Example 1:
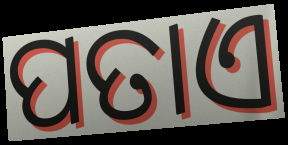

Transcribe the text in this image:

ପତାଏ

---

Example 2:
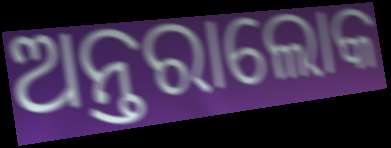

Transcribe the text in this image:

ଅନ୍ତରାଲୋକ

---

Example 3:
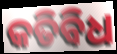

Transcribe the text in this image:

କତିବିଧ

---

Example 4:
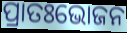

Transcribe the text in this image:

ପ୍ରାତଃଭୋଜନ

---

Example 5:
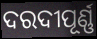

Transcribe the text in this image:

ଦରଦୀପୂର୍ଣ୍ଣ